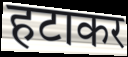
हटाकर